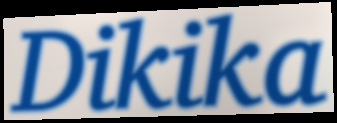
Dikika